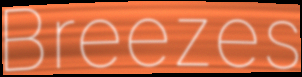
Breezes